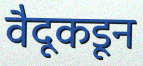
वैदूकडून